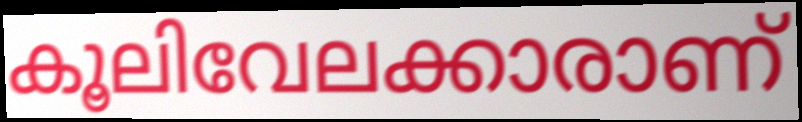
കൂലിവേലക്കാരാണ്